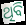
ଥିବି